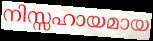
നിസ്സഹായമായ